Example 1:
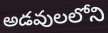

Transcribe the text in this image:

అడవులలోని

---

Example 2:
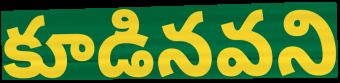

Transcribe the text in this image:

కూడినవని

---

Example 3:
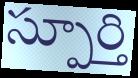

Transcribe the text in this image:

స్పూర్తి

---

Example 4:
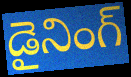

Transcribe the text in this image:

డైనింగ్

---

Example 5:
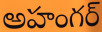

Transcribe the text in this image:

అహంగర్